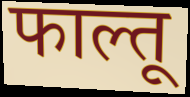
फाल्तू